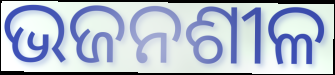
ଭଜନଶୀଳ